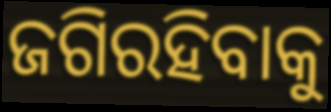
ଜଗିରହିବାକୁ